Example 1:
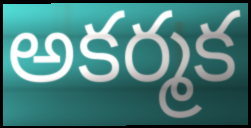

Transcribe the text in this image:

అకర్మక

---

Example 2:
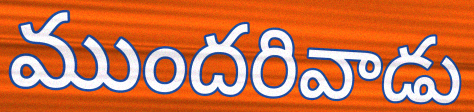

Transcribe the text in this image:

ముందరివాడు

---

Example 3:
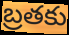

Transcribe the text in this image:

బ్రతకు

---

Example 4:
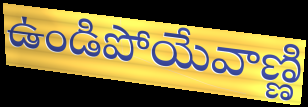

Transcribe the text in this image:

ఉండిపోయేవాణ్ణి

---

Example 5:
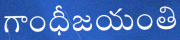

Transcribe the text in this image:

గాంధీజయంతి